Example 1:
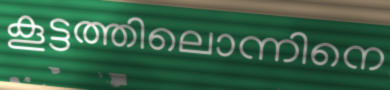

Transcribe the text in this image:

കൂട്ടത്തിലൊന്നിനെ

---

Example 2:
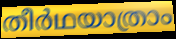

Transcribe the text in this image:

തീർഥയാത്രാം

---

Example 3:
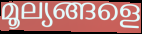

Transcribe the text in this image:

മൂല്യങ്ങളെ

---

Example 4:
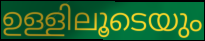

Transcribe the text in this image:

ഉള്ളിലൂടെയും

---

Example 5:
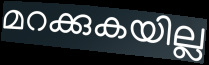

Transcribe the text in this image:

മറക്കുകയില്ല